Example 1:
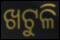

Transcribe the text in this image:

ଖଟୁଳି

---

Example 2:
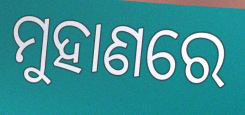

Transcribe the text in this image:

ମୁହାଣରେ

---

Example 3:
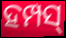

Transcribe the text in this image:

ହମ୍ପସ୍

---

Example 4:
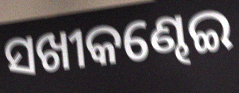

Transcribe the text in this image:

ସଖୀକଣ୍ଢେଇ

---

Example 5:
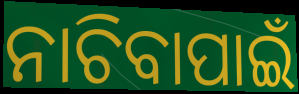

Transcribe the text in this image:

ନାଚିବାପାଇଁ